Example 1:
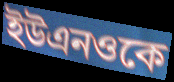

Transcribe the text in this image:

ইউএনওকে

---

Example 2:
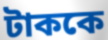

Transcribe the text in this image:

টাককে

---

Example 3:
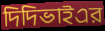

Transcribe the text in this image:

দিদিভাইএর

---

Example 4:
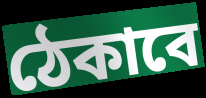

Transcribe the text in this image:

ঠেকাবে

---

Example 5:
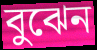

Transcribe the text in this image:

বুঝেন